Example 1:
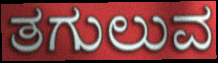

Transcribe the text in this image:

ತಗುಲುವ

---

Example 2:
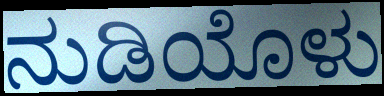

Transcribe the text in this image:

ನುಡಿಯೊಳು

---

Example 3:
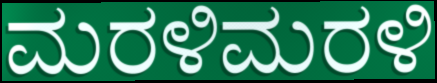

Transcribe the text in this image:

ಮರಳಿಮರಳಿ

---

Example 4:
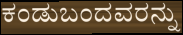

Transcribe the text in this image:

ಕಂಡುಬಂದವರನ್ನು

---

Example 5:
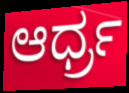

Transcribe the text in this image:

ಆರ್ಧ್ರ